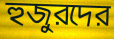
হুজুরদের